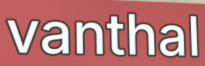
vanthal